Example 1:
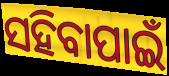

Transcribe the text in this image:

ସହିବାପାଇଁ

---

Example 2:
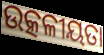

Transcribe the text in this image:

ଉତ୍କଳୀୟତା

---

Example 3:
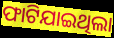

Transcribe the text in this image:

ଫାଟିଯାଇଥିଲା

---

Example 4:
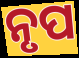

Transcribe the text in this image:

ନୃପ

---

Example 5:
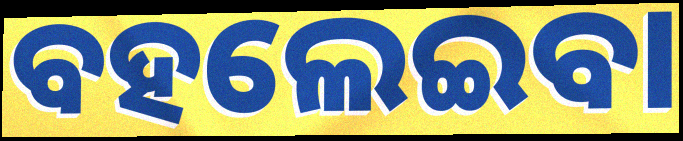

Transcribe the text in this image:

ବହଲେଇବା